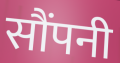
सौंपनी